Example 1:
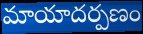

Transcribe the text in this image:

మాయాదర్పణం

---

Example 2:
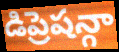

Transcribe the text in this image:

డిప్రెషన్గా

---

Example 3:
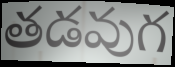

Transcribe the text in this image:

తడవుగ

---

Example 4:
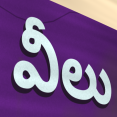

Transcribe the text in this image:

వీలు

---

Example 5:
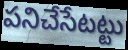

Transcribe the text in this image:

పనిచేసేటట్టు